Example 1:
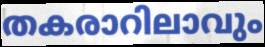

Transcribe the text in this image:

തകരാറിലാവും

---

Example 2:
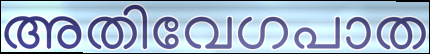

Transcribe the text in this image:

അതിവേഗപാത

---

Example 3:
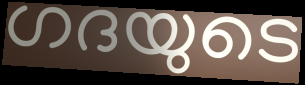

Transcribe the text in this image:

ഗദയുടെ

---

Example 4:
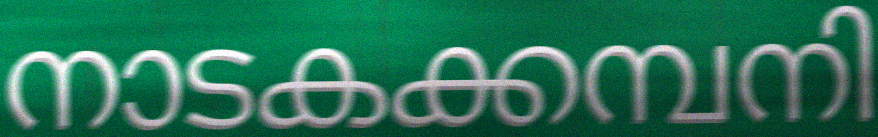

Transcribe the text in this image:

നാടകക്കമ്പനി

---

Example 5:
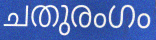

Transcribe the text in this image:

ചതുരംഗം